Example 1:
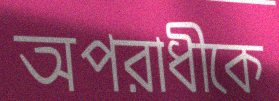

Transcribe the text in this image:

অপরাধীকে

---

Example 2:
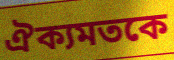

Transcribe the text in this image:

ঐক্যমতকে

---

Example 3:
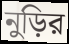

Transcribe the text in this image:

নুড়ির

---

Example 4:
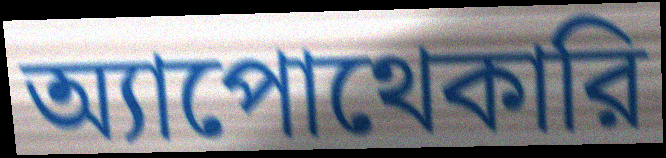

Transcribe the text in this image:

অ্যাপোথেকারি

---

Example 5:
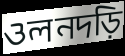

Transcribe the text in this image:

ওলনদড়ি